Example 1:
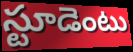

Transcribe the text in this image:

స్టూడెంటు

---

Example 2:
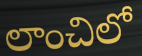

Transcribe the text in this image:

లాంచిలో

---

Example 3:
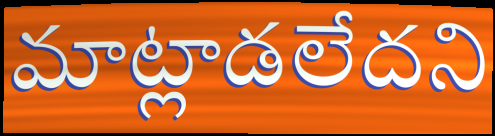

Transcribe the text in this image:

మాట్లాడలేదని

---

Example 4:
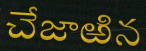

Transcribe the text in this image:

చేజాఱిన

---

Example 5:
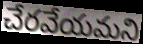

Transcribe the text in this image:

చేరవేయమని